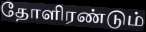
தோளிரண்டும்